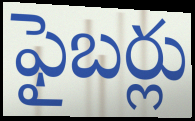
ఫైబర్లు